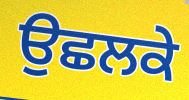
ਉਛਲਕੇ